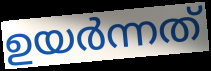
ഉയർന്നത്